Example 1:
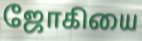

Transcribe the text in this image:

ஜோகியை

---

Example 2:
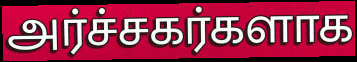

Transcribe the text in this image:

அர்ச்சகர்களாக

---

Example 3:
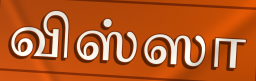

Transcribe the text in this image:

விஸ்ஸா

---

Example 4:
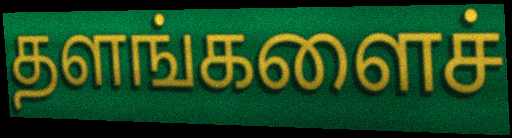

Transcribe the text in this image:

தளங்களைச்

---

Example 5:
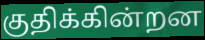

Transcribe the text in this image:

குதிக்கின்றன